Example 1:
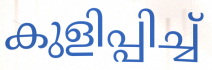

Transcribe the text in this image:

കുളിപ്പിച്ച്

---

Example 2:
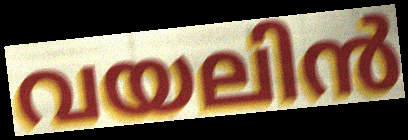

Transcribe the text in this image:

വയലിൻ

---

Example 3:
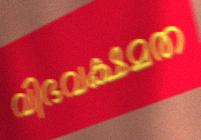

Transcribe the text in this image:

വിഭവക്ഷമത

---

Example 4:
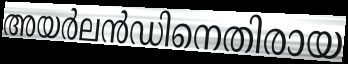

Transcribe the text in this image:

അയർലൻഡിനെതിരായ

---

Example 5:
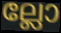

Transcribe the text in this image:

ല്ലോ